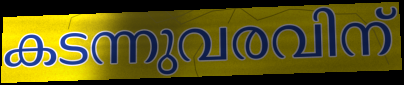
കടന്നുവരവിന്